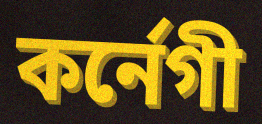
কর্নেগী